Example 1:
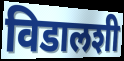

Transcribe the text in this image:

विडालशी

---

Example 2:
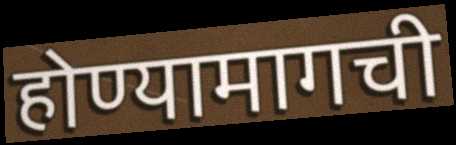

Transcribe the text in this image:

होण्यामागची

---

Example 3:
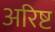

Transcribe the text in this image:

अरिष्ट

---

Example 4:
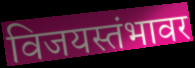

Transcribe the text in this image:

विजयस्तंभावर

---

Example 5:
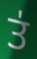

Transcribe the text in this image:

उ॑